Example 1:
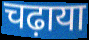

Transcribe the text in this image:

चढ़ाया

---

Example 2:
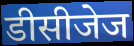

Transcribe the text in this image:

डीसीजेज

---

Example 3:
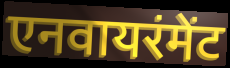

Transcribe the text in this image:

एनवायरंमेंट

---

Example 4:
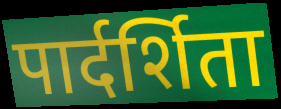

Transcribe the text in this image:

पार्दर्शिता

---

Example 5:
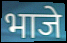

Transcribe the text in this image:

भाजे